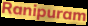
Ranipuram